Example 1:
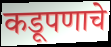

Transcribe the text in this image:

कडूपणाचे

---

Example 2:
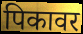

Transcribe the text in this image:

पिकावर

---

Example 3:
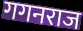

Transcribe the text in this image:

गगनराज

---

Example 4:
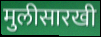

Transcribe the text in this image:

मुलीसारखी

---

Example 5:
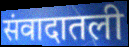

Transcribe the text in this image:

संवादातली